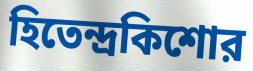
হিতেন্দ্রকিশোর